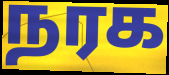
நரக